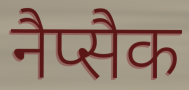
नैप्सैक